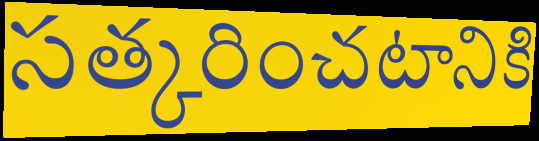
సత్కరించటానికి